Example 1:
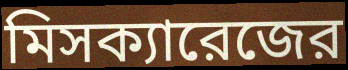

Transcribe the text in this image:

মিসক্যারেজের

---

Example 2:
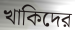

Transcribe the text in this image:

খাকিদের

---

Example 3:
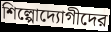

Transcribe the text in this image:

শিল্পোদ্যোগীদের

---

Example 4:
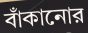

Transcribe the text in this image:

বাঁকানোর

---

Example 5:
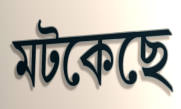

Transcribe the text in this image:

মটকেছে